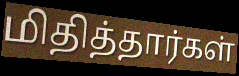
மிதித்தார்கள்